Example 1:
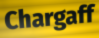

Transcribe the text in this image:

Chargaff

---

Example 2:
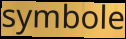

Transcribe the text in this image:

symbole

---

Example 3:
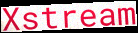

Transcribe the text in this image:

Xstream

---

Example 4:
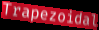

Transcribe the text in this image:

Trapezoidal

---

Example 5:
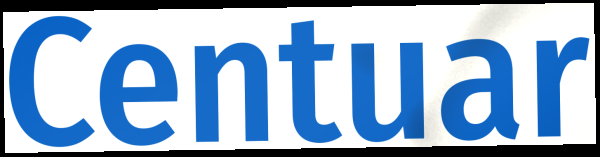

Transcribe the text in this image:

Centuar